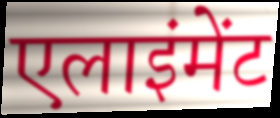
एलाइंमेंट